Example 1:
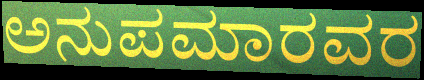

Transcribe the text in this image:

ಅನುಪಮಾರವರ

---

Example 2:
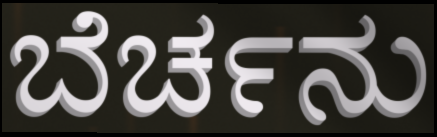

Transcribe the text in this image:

ಬೆರ್ಚನು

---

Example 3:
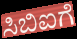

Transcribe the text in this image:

ಸಿಬಿಐಗೆ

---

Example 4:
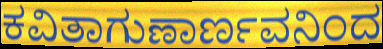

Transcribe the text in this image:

ಕವಿತಾಗುಣಾರ್ಣವನಿಂದ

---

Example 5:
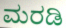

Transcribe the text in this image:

ಮರಡಿ